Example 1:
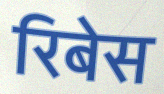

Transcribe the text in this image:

रिबेस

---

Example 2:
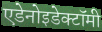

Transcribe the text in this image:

एडेनोइडेक्टॉमी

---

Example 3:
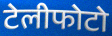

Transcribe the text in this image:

टेलीफोटो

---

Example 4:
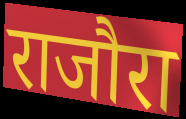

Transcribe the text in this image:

राजौरा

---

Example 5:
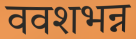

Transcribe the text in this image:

ववशभन्न